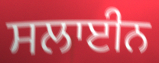
ਸਲਾਈਨ